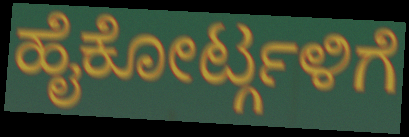
ಹೈಕೋರ್ಟ್ಗಳಿಗೆ